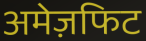
अमेज़फिट